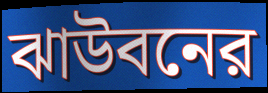
ঝাউবনের